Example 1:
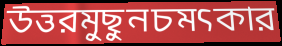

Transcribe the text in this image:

উত্তরমুছুনচমৎকার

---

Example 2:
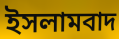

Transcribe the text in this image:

ইসলামবাদ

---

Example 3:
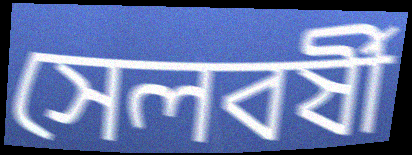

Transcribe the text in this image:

সেলবর্ষী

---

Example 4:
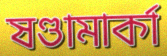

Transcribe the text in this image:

ষণ্ডামার্কা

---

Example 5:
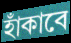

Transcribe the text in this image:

হাঁকাবে